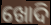
ଖୋଦି